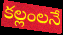
కల్లంలనే